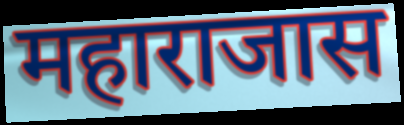
महाराजास